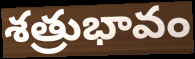
శత్రుభావం